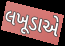
લખૂડાએ